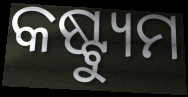
କଷ୍ଟ୍ୟୁମ